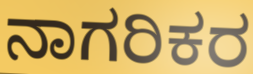
ನಾಗರಿಕರ